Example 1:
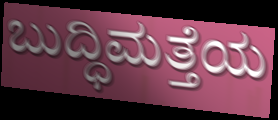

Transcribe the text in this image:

ಬುದ್ಧಿಮತ್ತೆಯ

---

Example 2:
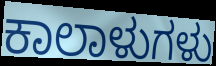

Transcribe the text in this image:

ಕಾಲಾಳುಗಳು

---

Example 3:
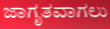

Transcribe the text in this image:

ಜಾಗೃತವಾಗಲು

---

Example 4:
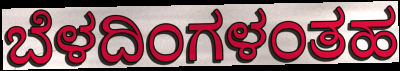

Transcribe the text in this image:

ಬೆಳದಿಂಗಳಂತಹ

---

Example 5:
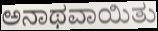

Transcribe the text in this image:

ಅನಾಥವಾಯಿತು